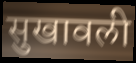
सुखावली